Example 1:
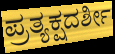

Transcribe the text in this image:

ಪ್ರತ್ಯಕ್ಷದರ್ಶೀ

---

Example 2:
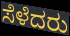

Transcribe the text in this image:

ಸೆಳೆದರು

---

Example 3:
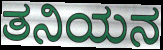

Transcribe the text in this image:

ತನಿಯನ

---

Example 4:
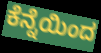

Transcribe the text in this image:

ಕೆನ್ನೆಯಿಂದ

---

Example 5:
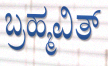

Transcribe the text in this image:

ಬ್ರಹ್ಮವಿತ್